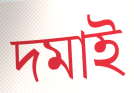
দমাই